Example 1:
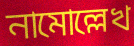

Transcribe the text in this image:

নামোল্লেখ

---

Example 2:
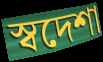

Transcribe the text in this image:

স্বদেশা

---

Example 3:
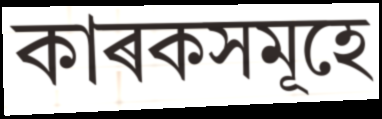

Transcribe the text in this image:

কাৰকসমূহে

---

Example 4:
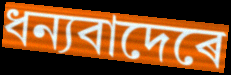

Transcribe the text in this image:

ধন্যবাদেৰে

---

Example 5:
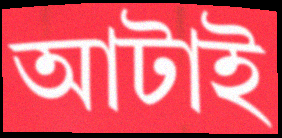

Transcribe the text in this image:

আটাই